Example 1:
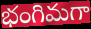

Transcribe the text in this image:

భంగిమగా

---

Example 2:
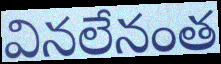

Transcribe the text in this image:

వినలేనంత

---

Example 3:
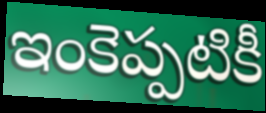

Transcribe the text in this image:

ఇంకెప్పటికీ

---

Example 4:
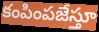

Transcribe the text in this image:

కంపింపజేస్తూ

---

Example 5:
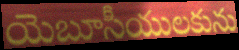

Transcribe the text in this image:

యెబూసీయులకును